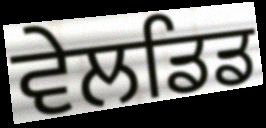
ਵੇਲਡਿਡ